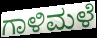
ಗಾಳಿಮಳೆ